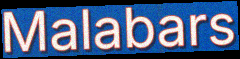
Malabars